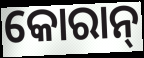
କୋରାନ୍